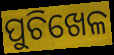
ପୁଚିଖେଳ